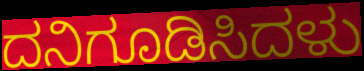
ದನಿಗೂಡಿಸಿದಳು